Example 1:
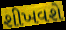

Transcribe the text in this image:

શીખવશે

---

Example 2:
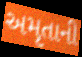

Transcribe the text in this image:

અમૃતાની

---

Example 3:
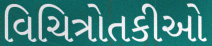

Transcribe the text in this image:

વિચિત્રોતકીઓ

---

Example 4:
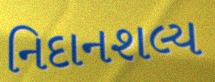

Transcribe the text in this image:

નિદાનશલ્ય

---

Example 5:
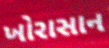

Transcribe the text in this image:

ખોરાસાન